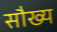
सौख्य